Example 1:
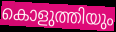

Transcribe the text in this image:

കൊളുത്തിയും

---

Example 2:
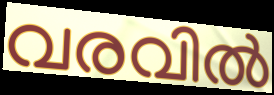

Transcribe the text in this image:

വരവിൽ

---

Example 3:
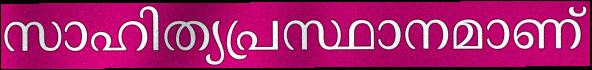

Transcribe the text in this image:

സാഹിത്യപ്രസ്ഥാനമാണ്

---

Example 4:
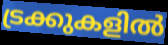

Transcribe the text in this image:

ട്രക്കുകളിൽ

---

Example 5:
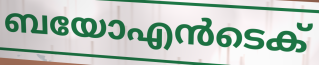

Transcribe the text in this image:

ബയോഎൻടെക്